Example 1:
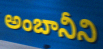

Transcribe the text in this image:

అంబానీని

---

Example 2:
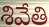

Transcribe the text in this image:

శివేతి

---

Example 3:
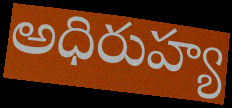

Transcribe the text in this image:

అధిరుహ్య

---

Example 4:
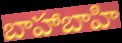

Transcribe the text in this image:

బాహాబాహి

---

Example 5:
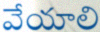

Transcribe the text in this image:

వేయాలి